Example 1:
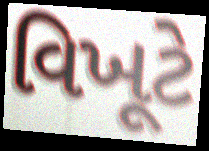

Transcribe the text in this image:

વિખૂટે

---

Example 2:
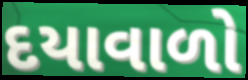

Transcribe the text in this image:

દયાવાળો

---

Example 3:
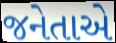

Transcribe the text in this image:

જનેતાએ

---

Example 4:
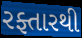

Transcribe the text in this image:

રફ્તારથી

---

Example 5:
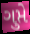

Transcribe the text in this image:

ગુપ્તે